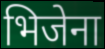
भिजेना